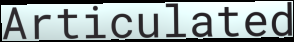
Articulated